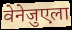
वेनेजुएला